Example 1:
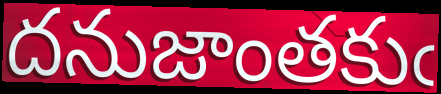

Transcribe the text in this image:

దనుజాంతకుఁ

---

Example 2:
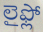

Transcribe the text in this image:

లైఫ్లో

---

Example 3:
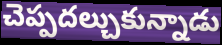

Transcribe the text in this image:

చెప్పదల్చుకున్నాడు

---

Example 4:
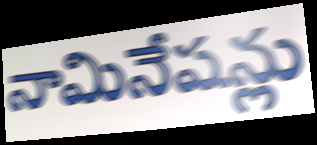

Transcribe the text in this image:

నామినేషన్లు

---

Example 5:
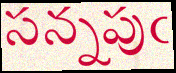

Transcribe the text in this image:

సన్నపుఁ